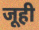
जूही